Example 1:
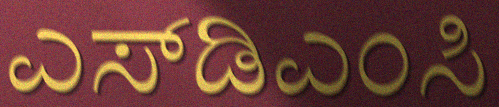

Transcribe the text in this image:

ಎಸ್‌ಡಿಎಂಸಿ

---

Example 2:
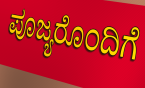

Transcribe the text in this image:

ಪೂಜ್ಯರೊಂದಿಗೆ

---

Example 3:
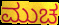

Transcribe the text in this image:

ಮುಚ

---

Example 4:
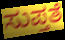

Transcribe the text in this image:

ಸುಪ್ತತೆ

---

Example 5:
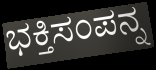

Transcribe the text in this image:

ಭಕ್ತಿಸಂಪನ್ನ